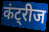
कंट्रीज